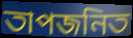
তাপজনিত